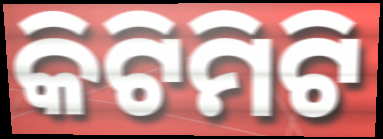
କିଟିମିଟି